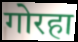
गोरहा